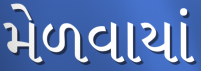
મેળવાયાં